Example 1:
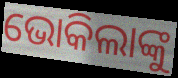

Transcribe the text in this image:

ଭୋକିଲାଙ୍କୁ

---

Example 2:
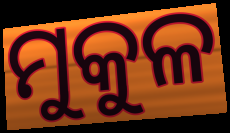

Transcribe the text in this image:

ମୁକୁଳ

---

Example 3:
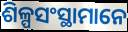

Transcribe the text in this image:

ଶିଳ୍ପସଂସ୍ଥାମାନେ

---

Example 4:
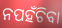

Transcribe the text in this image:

ନପହଁଚିବା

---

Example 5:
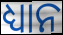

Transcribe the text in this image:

ଧ୍ୟାନ